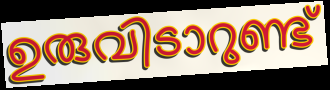
ഉരുവിടാറുണ്ട്